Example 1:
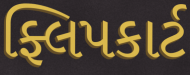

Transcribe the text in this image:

ફ્લિપકાર્ટ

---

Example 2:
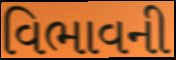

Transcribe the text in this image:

વિભાવની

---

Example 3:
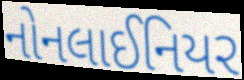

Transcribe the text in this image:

નોનલાઈનિયર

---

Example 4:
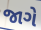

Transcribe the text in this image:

જાગે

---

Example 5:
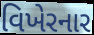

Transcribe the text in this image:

વિખેરનાર